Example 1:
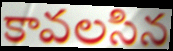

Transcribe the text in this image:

కావలసిన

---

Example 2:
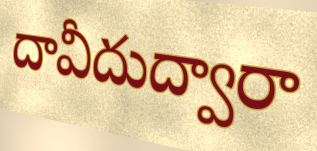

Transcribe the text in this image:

దావీదుద్వారా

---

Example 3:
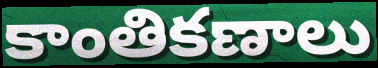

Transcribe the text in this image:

కాంతికణాలు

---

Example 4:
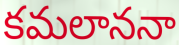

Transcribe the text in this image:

కమలాననా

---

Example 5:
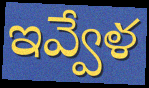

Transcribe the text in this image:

ఇవ్వేళ